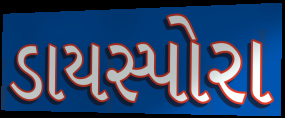
ડાયસ્પોરા